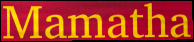
Mamatha